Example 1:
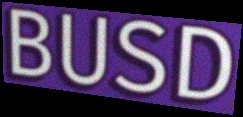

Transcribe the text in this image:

BUSD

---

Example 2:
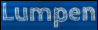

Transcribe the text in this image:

Lumpen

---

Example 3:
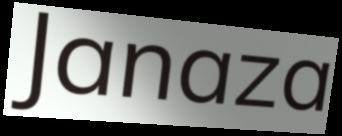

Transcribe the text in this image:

Janaza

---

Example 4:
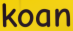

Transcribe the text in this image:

koan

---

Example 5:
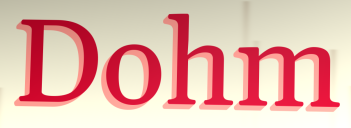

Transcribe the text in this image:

Dohm